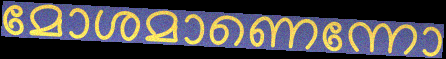
മോശമാണെന്നോ